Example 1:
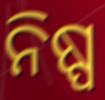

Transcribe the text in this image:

ନିଷ୍ପ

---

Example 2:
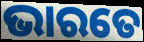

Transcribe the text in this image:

ଭାରତେ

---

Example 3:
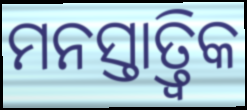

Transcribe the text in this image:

ମନସ୍ତାତ୍ତ୍ଵିକ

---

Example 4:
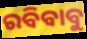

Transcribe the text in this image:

ରବିବାବୁ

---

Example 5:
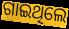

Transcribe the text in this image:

ଗାଇଥିଲେ